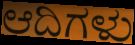
ಆದಿಗಳು